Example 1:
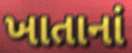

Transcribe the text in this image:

ખાતાનાં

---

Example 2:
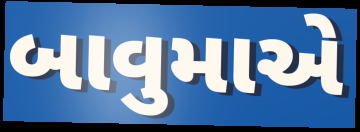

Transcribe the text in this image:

બાવુમાએ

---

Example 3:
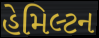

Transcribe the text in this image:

હેમિલ્ટન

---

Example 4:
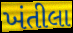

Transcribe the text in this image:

ખંતીલા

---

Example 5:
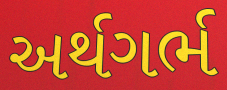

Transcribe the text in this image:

અર્થગર્ભ